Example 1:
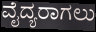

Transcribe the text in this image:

ವೈದ್ಯರಾಗಲು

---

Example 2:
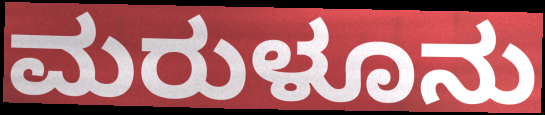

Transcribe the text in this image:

ಮರುಳೂನು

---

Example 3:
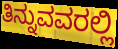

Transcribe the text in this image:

ತಿನ್ನುವವರಲ್ಲಿ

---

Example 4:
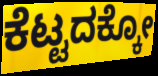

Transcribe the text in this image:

ಕೆಟ್ಟದಕ್ಕೋ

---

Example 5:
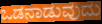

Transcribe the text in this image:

ಒಡನಾಡುವುದು